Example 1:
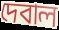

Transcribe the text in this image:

দেবাল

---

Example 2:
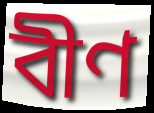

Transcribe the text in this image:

বীণ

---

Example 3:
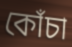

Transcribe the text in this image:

কোঁচা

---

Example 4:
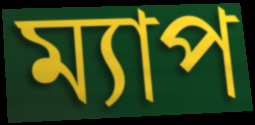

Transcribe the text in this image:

ম্যাপ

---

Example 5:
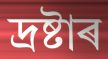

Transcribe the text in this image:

দ্ৰষ্টাৰ